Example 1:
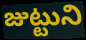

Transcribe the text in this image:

జుట్టుని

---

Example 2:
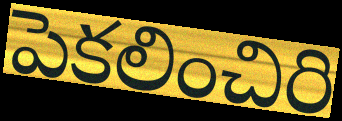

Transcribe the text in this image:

పెకలించిరి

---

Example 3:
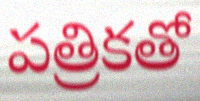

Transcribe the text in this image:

పత్రికతో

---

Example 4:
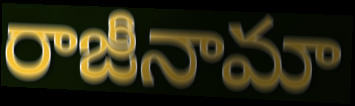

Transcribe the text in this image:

రాజీనామా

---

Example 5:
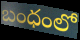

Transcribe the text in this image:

బంధంలో